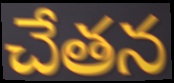
చేతన